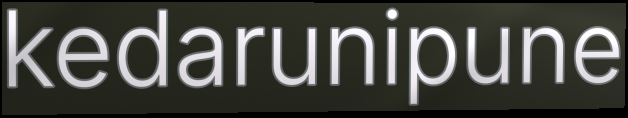
kedarunipune